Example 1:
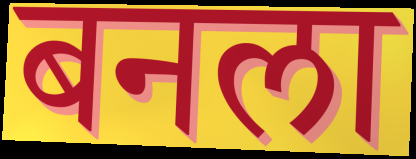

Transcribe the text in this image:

बनला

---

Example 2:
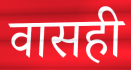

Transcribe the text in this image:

वासही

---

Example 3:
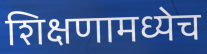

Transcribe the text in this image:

शिक्षणामध्येच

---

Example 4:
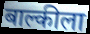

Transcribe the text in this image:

बाल्कीला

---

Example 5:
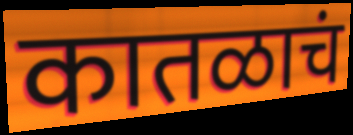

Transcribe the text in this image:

कातळाचं